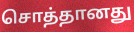
சொத்தானது